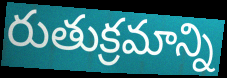
రుతుక్రమాన్ని